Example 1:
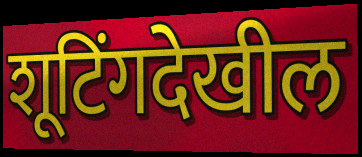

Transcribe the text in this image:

शूटिंगदेखील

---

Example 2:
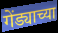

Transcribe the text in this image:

गेंड्याच्या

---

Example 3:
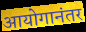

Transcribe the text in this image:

आयोगानंतर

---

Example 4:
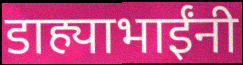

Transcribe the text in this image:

डाह्याभाईंनी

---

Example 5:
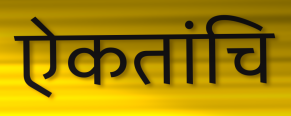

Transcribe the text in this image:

ऐकतांचि